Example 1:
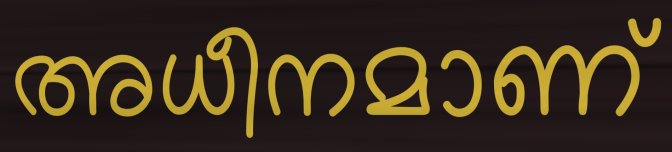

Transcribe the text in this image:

അധീനമാണ്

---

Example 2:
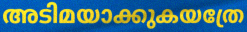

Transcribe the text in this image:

അടിമയാക്കുകയത്രേ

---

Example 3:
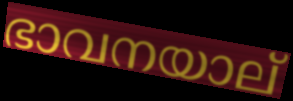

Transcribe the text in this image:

ഭാവനയാല്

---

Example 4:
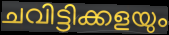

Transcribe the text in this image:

ചവിട്ടിക്കളയും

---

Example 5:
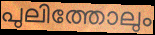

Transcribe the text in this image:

പുലിത്തോലും